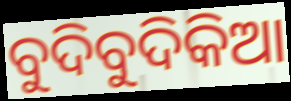
ବୁଦିବୁଦିକିଆ